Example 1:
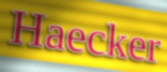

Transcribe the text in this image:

Haecker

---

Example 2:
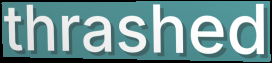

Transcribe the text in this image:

thrashed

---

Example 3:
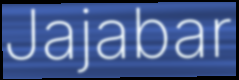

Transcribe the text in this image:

Jajabar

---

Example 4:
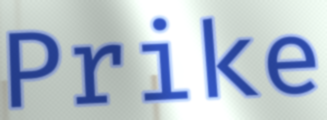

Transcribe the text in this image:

Prike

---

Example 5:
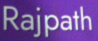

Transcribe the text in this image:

Rajpath